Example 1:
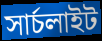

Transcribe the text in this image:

সার্চলাইট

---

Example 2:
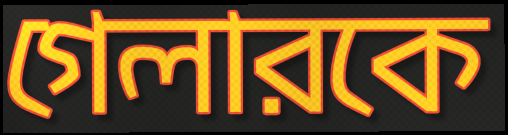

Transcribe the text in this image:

গেলারকে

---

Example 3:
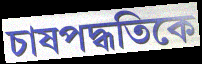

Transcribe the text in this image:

চাষপদ্ধতিকে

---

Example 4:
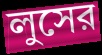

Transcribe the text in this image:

লুসের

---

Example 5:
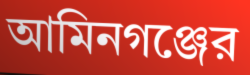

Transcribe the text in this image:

আমিনগঞ্জের